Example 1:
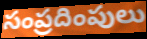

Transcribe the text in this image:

సంప్రదింపులు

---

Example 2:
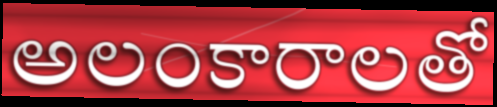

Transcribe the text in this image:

అలంకారాలతో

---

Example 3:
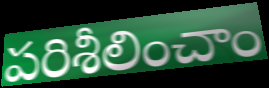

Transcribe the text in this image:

పరిశీలించాం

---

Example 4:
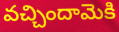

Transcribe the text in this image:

వచ్చిందామెకి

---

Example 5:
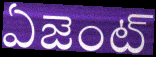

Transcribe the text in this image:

ఏజెంట్